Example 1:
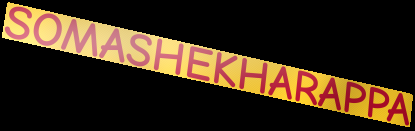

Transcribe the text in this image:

SOMASHEKHARAPPA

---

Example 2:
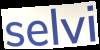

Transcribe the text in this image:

selvi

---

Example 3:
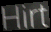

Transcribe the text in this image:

Hirt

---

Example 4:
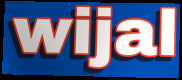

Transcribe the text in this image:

wijal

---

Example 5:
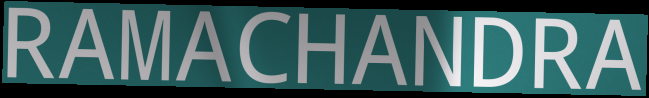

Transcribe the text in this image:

RAMACHANDRA